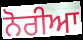
ਨੋਰੀਆ